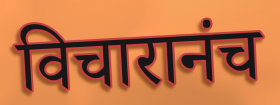
विचारानंच